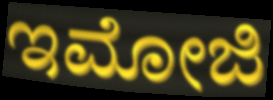
ಇಮೋಜಿ